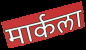
मार्कला